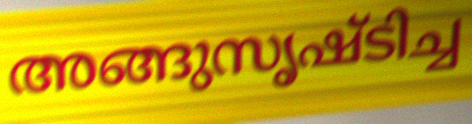
അങ്ങുസൃഷ്ടിച്ച